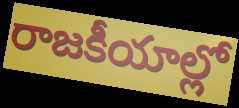
రాజకీయాల్లో